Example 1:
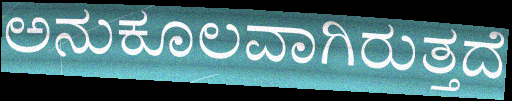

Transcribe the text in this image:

ಅನುಕೂಲವಾಗಿರುತ್ತದೆ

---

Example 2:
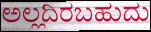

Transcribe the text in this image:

ಅಲ್ಲದಿರಬಹುದು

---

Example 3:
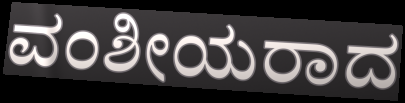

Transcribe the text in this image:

ವಂಶೀಯರಾದ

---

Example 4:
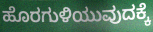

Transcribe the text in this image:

ಹೊರಗುಳಿಯುವುದಕ್ಕೆ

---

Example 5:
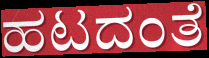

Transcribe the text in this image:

ಹಟದಂತೆ